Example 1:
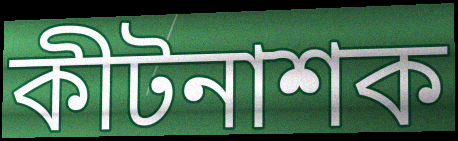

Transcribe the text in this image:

কীটনাশক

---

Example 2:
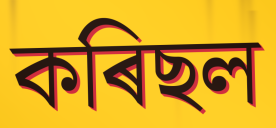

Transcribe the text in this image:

কৰিছল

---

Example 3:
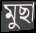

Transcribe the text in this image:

মুছা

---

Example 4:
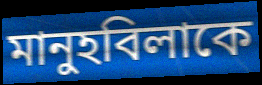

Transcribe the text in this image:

মানুহবিলাকে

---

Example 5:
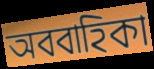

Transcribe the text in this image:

অববাহিকা